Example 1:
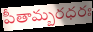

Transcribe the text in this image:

పీతామ్బరధరః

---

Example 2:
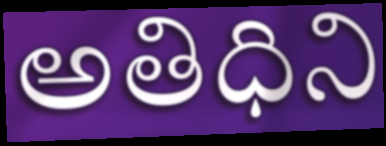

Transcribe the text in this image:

అతిధిని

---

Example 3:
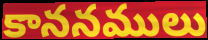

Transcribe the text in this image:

కాననములు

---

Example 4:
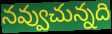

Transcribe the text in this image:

నవ్వుచున్నది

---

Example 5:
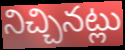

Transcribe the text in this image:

నిచ్చినట్లు